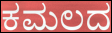
ಕಮಲದ